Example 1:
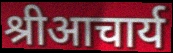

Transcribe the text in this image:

श्रीआचार्य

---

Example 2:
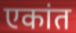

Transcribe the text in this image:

एकांत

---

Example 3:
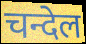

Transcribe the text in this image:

चन्देल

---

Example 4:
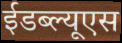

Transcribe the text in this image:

ईडब्ल्यूएस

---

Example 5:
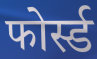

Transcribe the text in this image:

फोर्स्ड